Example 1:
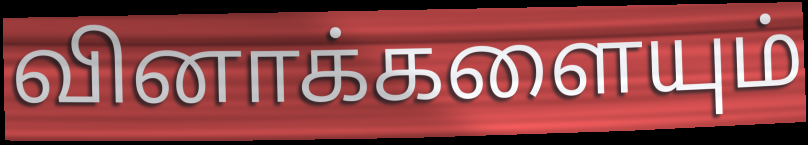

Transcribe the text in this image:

வினாக்களையும்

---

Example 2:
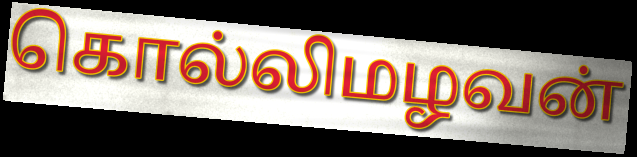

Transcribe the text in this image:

கொல்லிமழவன்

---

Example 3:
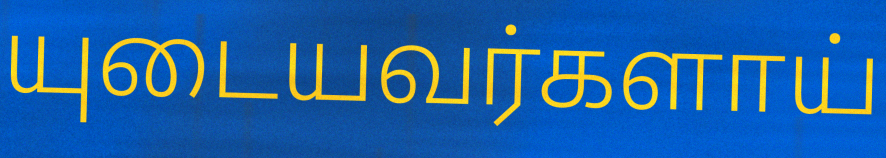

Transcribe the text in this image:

யுடையவர்களாய்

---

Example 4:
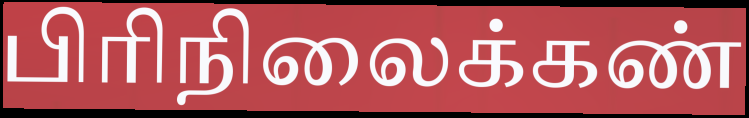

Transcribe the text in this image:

பிரிநிலைக்கண்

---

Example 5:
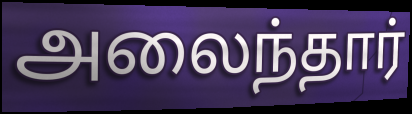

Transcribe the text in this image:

அலைந்தார்